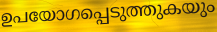
ഉപയോഗപ്പെടുത്തുകയും